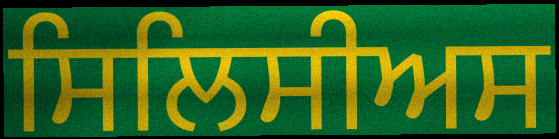
ਸਿਲਿਸੀਅਸ